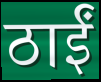
ठाईं